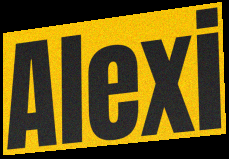
Alexi